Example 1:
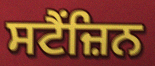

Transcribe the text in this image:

ਸਟੈਂਜ਼ਿਨ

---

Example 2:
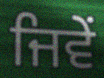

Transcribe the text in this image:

ਜਿਵੇਂ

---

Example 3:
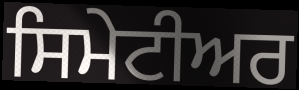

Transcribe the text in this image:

ਸਿਮੇਟੀਅਰ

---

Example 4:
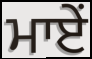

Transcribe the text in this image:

ਮਾਏਂ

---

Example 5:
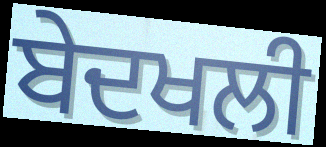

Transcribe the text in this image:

ਬੇਦਖਲੀ